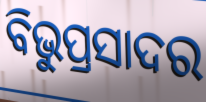
ବିଭୁପ୍ରସାଦର